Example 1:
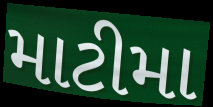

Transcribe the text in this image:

માટીમા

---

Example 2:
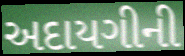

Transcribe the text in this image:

અદાયગીની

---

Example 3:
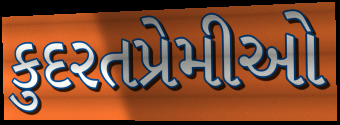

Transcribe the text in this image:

કુદરતપ્રેમીઓ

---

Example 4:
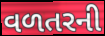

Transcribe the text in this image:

વળતરની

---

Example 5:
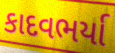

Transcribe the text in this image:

કાદવભર્યા